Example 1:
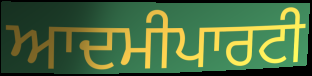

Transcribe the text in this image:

ਆਦਮੀਪਾਰਟੀ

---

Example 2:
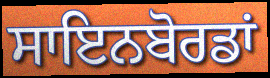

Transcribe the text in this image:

ਸਾਇਨਬੋਰਡਾਂ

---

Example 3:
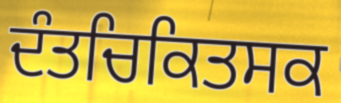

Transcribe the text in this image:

ਦੰਤਚਿਕਿਤਸਕ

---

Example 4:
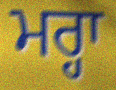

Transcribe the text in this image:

ਮਰ੍ਹਾ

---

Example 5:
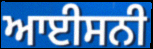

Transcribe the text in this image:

ਆਈਸਨੀ